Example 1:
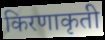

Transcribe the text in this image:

किरणाकृती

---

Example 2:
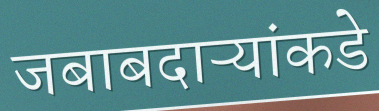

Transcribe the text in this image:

जबाबदाऱ्यांकडे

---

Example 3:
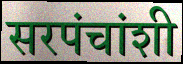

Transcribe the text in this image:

सरपंचांशी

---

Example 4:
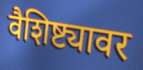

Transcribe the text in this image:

वैशिष्ट्यावर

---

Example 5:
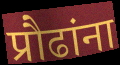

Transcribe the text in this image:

प्रौढांना